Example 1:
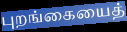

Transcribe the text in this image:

புறங்கையைத்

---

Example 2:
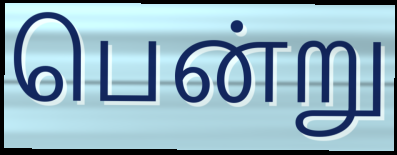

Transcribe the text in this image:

பென்று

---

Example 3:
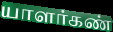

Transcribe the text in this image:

யாளர்கண்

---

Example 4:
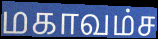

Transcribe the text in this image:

மகாவம்ச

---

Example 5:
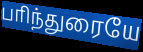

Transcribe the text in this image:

பரிந்துரையே